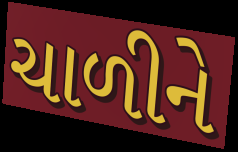
ચાળીને